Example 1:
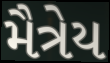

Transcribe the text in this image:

મૈત્રેય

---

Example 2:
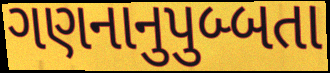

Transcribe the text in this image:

ગણનાનુપુબ્બતા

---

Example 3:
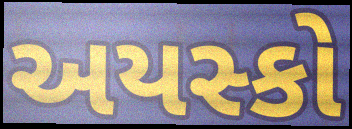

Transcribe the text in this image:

અયસ્કો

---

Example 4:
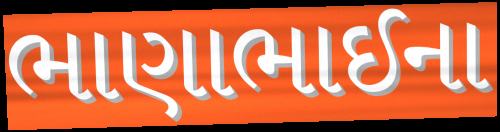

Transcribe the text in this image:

ભાણાભાઈના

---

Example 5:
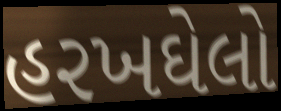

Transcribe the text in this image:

હરખઘેલો